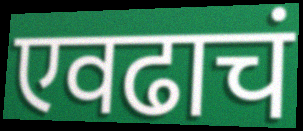
एवढाचं